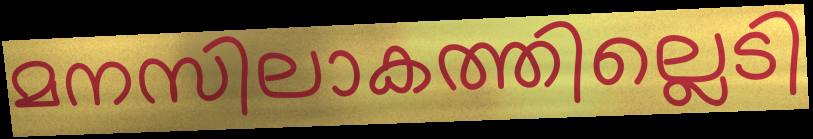
മനസിലാകത്തില്ലെടി